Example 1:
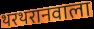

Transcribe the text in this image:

थरथरानवाला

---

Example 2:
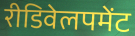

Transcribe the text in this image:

रीडिवेलपमेंट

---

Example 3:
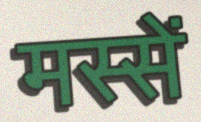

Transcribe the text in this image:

मस्सें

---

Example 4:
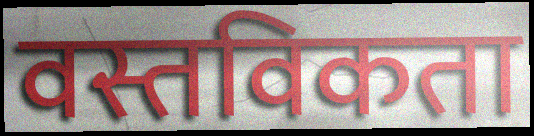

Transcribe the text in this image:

वस्तविकता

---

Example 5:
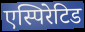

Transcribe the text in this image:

एस्पिरेटिड